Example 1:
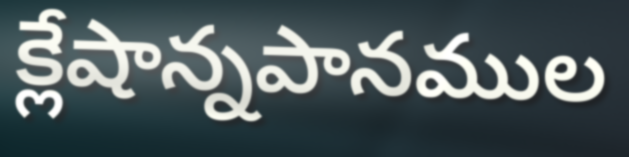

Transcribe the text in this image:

క్లేషాన్నపానముల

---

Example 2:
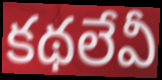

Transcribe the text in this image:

కథలేవీ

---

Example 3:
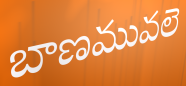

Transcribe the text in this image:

బాణమువలె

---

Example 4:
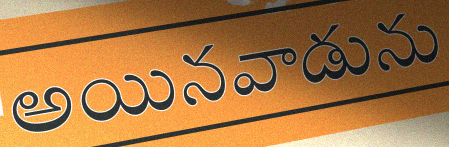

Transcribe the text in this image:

అయినవాడును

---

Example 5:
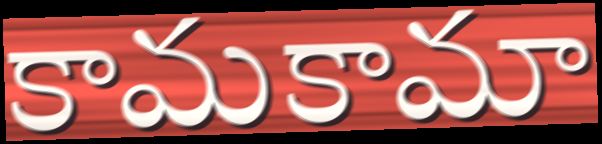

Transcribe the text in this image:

కామకామా